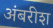
अंबरीश